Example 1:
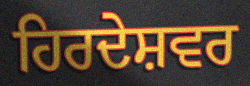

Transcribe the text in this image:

ਹਿਰਦੇਸ਼ਵਰ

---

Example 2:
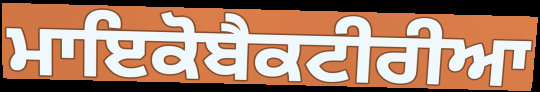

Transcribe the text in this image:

ਮਾਇਕੋਬੈਕਟੀਰੀਆ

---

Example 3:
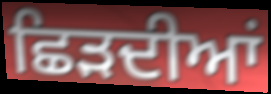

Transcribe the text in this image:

ਛਿੜਦੀਆਂ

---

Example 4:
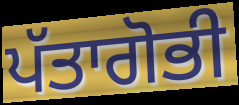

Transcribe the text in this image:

ਪੱਤਾਗੋਭੀ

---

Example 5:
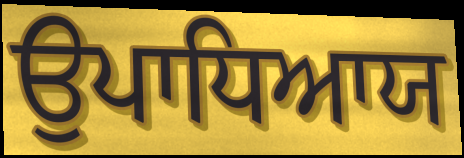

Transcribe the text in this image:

ਉਪਾਧਿਆਯ